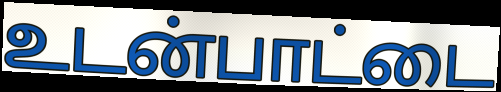
உடன்பாட்டை